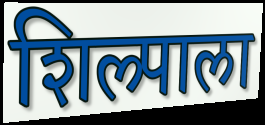
शिल्पाला